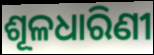
ଶୂଳଧାରିଣୀ